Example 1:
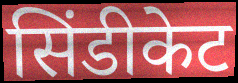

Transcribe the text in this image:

सिंडीकेट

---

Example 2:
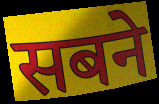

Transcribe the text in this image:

सबने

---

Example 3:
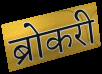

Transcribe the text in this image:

ब्रोकरी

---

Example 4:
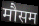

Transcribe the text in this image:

मौसम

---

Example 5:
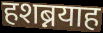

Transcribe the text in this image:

हशब्नयाह